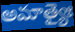
అమాత్యైః